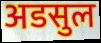
अडसुल